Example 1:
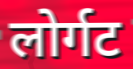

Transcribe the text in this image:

लोर्गट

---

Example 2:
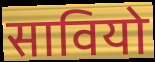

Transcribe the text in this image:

सावियो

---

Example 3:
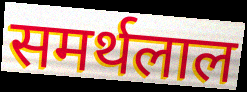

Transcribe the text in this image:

समर्थलाल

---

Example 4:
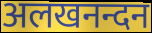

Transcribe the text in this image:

अलखनन्दन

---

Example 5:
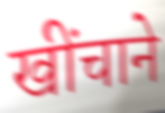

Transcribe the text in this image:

खींचाने